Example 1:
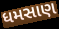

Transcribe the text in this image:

ધમસાણ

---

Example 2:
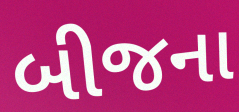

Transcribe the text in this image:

બીજના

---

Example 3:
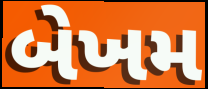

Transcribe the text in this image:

બેખમ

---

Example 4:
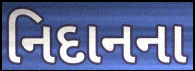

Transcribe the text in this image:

નિદાનના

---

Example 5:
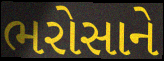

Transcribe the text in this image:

ભરોસાને